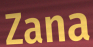
Zana